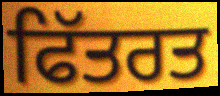
ਫਿੱਤਰਤ